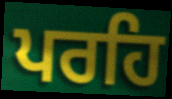
ਪਰਹਿ